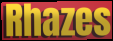
Rhazes